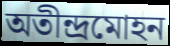
অতীন্দ্রমোহন